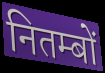
नितम्बों